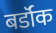
बर्डॉक